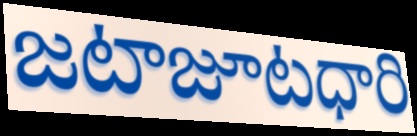
జటాజూటధారి